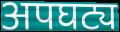
अपघट्य